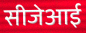
सीजेआई